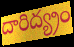
దారిద్య్రం